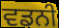
ਵਡਨੀ